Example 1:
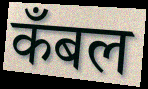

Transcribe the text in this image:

कँबल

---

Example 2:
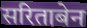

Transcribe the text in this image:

सरिताबेन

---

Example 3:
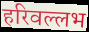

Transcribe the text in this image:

हरिवल्लभ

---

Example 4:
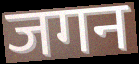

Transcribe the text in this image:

जगन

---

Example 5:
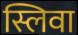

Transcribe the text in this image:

स्लिवा